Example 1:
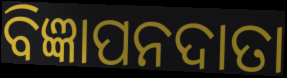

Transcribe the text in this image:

ବିଜ୍ଞାପନଦାତା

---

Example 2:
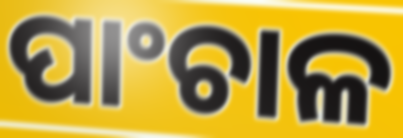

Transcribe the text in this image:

ପାଂଚାଳ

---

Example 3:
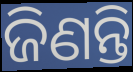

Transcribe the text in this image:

ଜିଣନ୍ତି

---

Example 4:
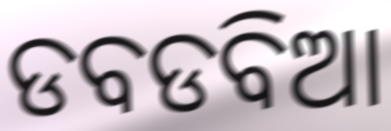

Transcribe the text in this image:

ଡବଡବିଆ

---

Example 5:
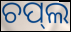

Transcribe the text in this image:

ଚପ୍‌ଲ